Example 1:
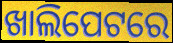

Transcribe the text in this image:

ଖାଲିପେଟରେ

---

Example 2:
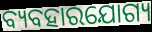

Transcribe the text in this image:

ବ୍ୟବହାରଯୋଗ୍ୟ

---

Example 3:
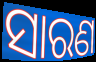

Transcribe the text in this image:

ସାରଣ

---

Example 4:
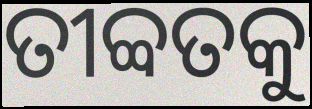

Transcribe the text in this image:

ତୀବ୍ବତକୁ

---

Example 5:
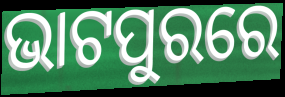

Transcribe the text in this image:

ଭାଟପୁରରେ